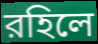
রহিলে